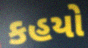
કહયો